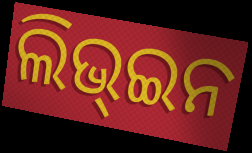
ଲିଭ୍ଇନ